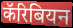
कॅरिबियन